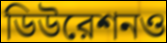
ডিউরেশনও